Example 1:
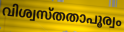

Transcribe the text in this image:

വിശ്വസ്തതാപൂര്വം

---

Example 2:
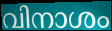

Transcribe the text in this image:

വിനാശം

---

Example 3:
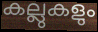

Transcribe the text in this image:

കല്ലുകളും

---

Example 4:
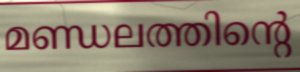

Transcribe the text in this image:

മണ്ഡലത്തിന്റെ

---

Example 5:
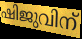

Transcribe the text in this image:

ഷിജുവിന്